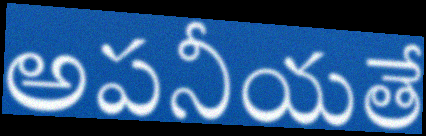
అపనీయతే